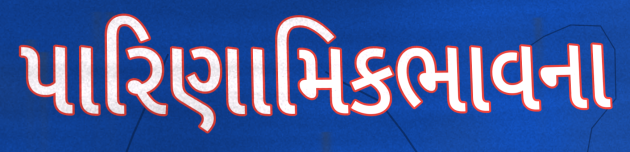
પારિણામિકભાવના